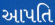
આપતિ